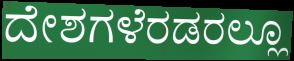
ದೇಶಗಳೆರಡರಲ್ಲೂ